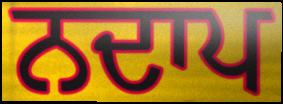
ਨਦਾਪ